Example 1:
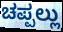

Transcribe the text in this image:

ಚಪ್ಪಲ್ಲು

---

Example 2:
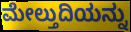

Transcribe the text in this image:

ಮೇಲ್ತುದಿಯನ್ನು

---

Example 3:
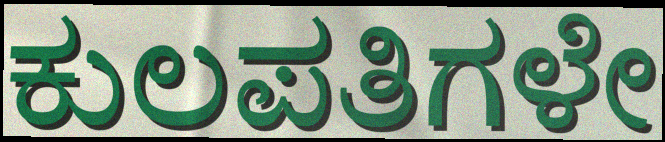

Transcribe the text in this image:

ಕುಲಪತಿಗಳೇ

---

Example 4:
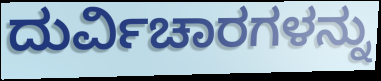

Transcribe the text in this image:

ದುರ್ವಿಚಾರಗಳನ್ನು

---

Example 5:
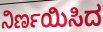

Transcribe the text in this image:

ನಿರ್ಣಯಿಸಿದ